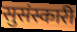
सुसंस्कारी